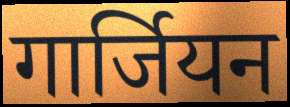
गार्जियन